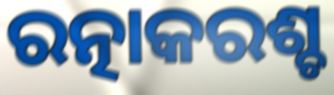
ରତ୍ନାକରଶ୍ଚ